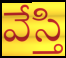
వేస్తి